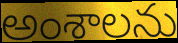
అంశాలను